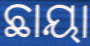
ଛାୟା